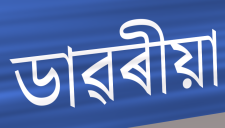
ডাৱৰীয়া